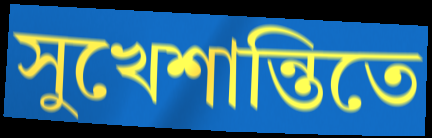
সুখেশান্তিতে